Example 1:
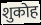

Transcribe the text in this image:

शुकोह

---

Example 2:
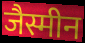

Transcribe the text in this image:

जैस्मीन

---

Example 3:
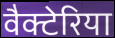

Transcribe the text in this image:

वैक्टेरिया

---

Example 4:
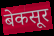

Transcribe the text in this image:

बेकसूर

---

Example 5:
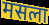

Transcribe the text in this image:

मसला